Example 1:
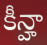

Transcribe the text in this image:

కీన్హా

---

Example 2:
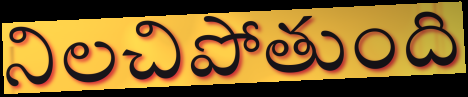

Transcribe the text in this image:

నిలచిపోతుంది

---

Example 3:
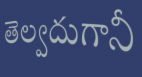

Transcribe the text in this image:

తెల్వదుగానీ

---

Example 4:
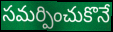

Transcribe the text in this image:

సమర్పించుకొనే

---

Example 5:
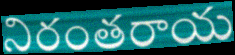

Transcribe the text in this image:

నిరంతరాయ